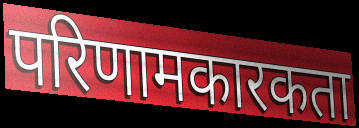
परिणामकारकता